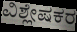
ವಿಶ್ಲೇಷಕರ